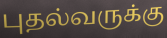
புதல்வருக்கு